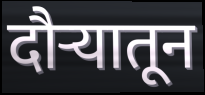
दौर्‍यातून